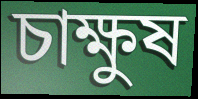
চাক্ষুষ